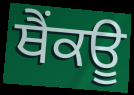
ਥੈਂਕਊ